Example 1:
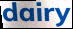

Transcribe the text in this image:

dairy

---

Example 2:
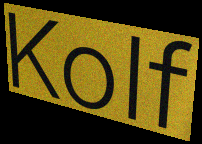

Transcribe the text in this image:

Kolf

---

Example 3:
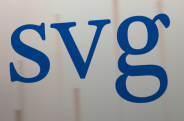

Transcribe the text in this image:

svg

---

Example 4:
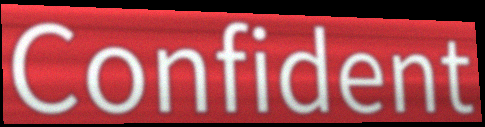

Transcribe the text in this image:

Confident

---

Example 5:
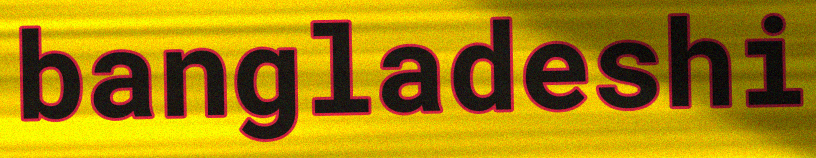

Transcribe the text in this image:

bangladeshi